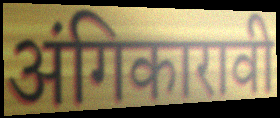
अंगिकारावी